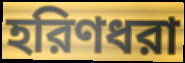
হরিণধরা